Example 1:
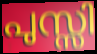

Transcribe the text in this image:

പുസ്സി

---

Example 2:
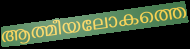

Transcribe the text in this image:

ആത്മീയലോകത്തെ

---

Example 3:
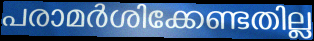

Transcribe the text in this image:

പരാമർശിക്കേണ്ടതില്ല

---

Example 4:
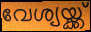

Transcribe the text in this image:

വേശ്യയ്ക്ക്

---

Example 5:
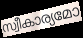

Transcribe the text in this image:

സ്വീകാര്യമോ